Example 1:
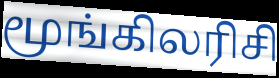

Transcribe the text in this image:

மூங்கிலரிசி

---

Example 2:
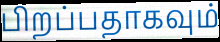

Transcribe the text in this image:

பிறப்பதாகவும்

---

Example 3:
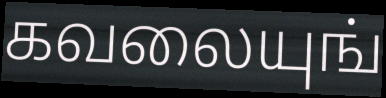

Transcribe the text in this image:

கவலையுங்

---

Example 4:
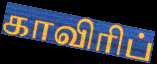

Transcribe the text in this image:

காவிரிப்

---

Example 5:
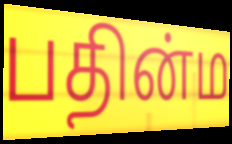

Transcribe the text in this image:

பதின்ம